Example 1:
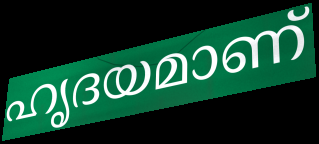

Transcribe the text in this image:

ഹൃദയമാണ്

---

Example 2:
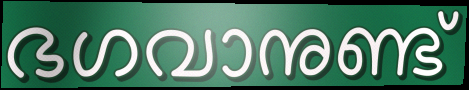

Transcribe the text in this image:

ഭഗവാനുണ്ട്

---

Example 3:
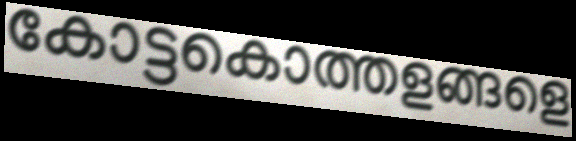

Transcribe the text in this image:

കോട്ടകൊത്തളങ്ങളെ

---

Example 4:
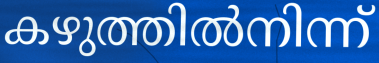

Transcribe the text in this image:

കഴുത്തിൽനിന്ന്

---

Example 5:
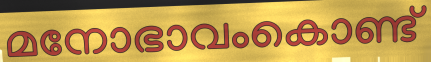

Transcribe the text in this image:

മനോഭാവംകൊണ്ട്